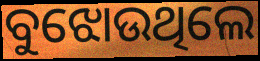
ବୁଝୋଉଥିଲେ